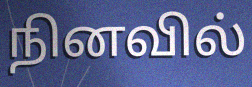
நினவில்